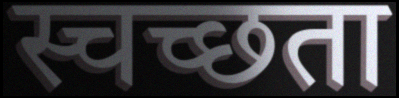
स्चच्छता